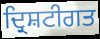
ਦ੍ਰਿਸ਼ਟੀਗਤ